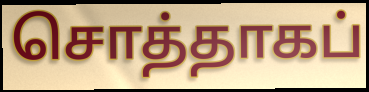
சொத்தாகப்